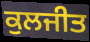
ਕੁਲਜੀਤ